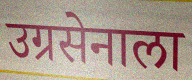
उग्रसेनाला